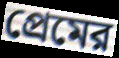
প্রেমের